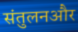
संतुलनऔर